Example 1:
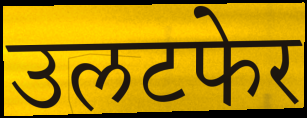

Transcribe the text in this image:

उलटफेर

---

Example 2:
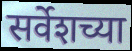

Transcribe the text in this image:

सर्वेशच्या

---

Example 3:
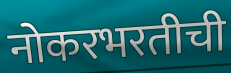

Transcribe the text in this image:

नोकरभरतीची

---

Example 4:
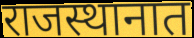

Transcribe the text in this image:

राजस्थानात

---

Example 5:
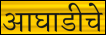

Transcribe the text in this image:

आघाडीचे